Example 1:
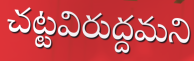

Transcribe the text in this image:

చట్టవిరుద్దమని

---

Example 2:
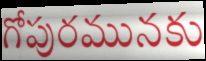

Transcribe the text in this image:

గోపురమునకు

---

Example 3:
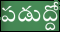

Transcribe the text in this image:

పడుద్దో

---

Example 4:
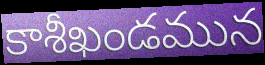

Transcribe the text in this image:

కాశీఖండమున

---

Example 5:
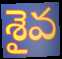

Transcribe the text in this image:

శైవ